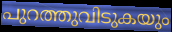
പുറത്തുവിടുകയും